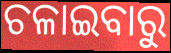
ଚଳାଇବାରୁ